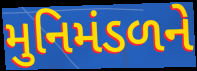
મુનિમંડળને